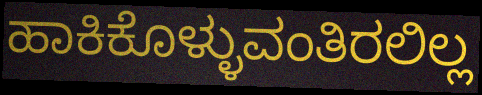
ಹಾಕಿಕೊಳ್ಳುವಂತಿರಲಿಲ್ಲ